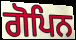
ਗੋਪਿਨ